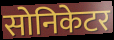
सोनिकेटर